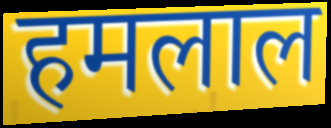
हमलाल